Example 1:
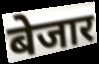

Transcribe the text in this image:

बेजार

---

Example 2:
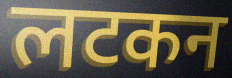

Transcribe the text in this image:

लटकन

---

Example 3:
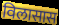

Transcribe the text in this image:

विलासास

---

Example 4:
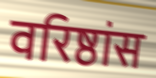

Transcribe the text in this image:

वरिष्ठांस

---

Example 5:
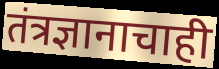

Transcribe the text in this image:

तंत्रज्ञानाचाही